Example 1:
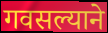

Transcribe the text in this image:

गवसल्याने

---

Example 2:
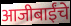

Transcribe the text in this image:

आजीबाईंचे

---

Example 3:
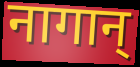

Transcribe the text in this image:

नागान्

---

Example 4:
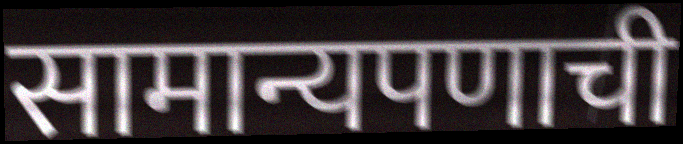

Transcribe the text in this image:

सामान्यपणाची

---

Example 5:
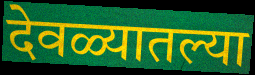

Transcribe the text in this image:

देवळ्यातल्या